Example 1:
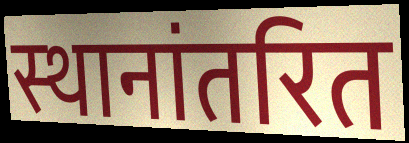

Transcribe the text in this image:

स्थानांतरित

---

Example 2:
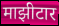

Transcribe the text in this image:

माझीटार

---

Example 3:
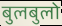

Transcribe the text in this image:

बुलबुलो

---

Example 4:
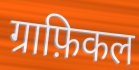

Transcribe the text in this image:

ग्राफ़िकल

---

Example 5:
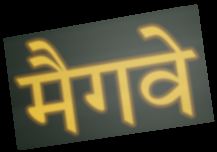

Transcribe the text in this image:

मैगवे